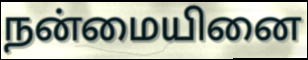
நன்மையினை